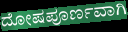
ದೋಷಪೂರ್ಣವಾಗಿ